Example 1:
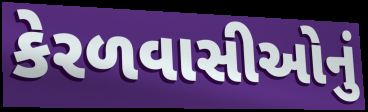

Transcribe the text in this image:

કેરળવાસીઓનું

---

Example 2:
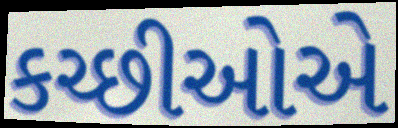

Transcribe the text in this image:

કચ્છીઓએ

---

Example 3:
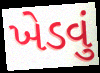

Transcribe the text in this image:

ખેડવું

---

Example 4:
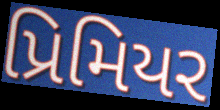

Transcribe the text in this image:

પ્રિમિયર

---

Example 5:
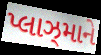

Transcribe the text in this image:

પ્લાઝ્માને